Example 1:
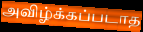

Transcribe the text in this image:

அவிழ்க்கப்படாத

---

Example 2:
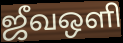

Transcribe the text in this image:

ஜீவஒளி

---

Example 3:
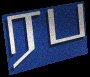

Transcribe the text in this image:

ரப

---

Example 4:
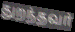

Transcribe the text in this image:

துறந்தவர்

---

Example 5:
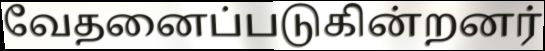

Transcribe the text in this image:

வேதனைப்படுகின்றனர்